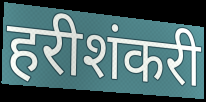
हरीशंकरी